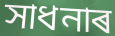
সাধনাৰ